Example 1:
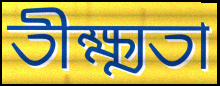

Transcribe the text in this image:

তীক্ষ্মতা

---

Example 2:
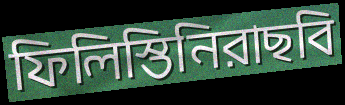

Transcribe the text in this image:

ফিলিস্তিনিরাছবি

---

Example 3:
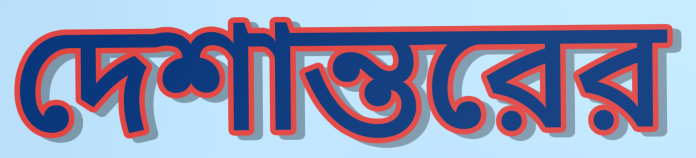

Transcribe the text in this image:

দেশান্তরের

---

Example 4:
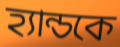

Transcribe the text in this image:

হ্যান্ডকে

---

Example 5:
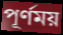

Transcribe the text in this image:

পূর্ণময়